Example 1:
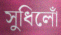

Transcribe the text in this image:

সুধিলোঁ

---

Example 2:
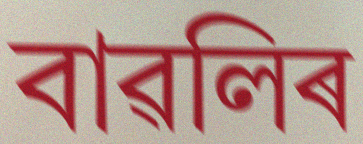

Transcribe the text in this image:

বাৱলিৰ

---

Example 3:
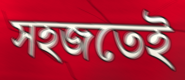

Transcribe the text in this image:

সহজতেই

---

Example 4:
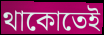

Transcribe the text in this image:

থাকোতেই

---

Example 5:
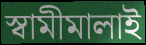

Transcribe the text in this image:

স্বামীমালাই